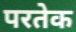
परतेक